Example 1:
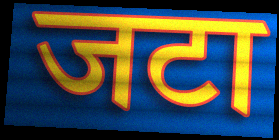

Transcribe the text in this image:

जटा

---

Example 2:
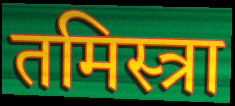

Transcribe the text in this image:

तमिस्त्रा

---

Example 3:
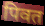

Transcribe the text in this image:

पिवत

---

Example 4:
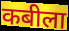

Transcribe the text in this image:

कबीला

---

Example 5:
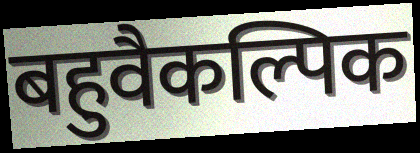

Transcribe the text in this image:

बहुवैकल्पिक